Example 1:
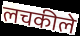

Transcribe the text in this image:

लचकीले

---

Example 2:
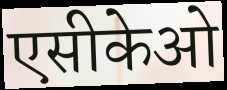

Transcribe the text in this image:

एसीकेओ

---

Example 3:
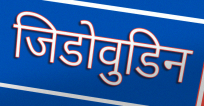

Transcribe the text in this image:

जिडोवुडिन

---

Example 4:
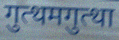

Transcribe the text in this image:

गुत्थमगुत्था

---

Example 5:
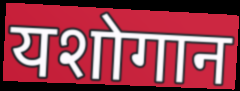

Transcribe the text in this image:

यशोगान